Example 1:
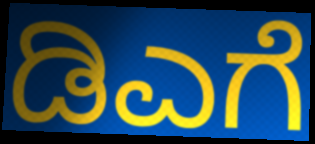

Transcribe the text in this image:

ಡಿಎಗೆ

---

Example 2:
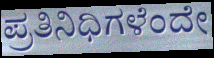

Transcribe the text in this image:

ಪ್ರತಿನಿಧಿಗಳೆಂದೇ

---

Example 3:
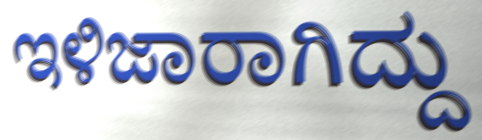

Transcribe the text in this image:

ಇಳಿಜಾರಾಗಿದ್ದು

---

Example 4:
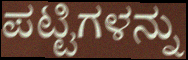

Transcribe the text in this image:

ಪಟ್ಟಿಗಳನ್ನು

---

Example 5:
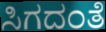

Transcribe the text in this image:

ಸಿಗದಂತೆ